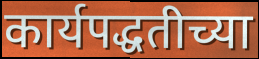
कार्यपद्धतीच्या